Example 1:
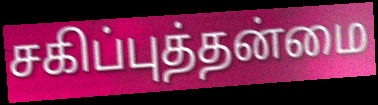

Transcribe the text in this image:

சகிப்புத்தன்மை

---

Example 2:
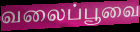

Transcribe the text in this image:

வலைப்பூவை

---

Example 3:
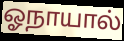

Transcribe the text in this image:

ஓநாயால்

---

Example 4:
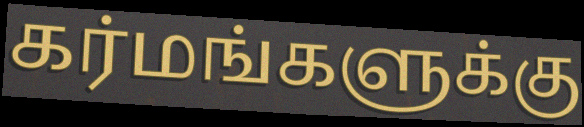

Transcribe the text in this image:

கர்மங்களுக்கு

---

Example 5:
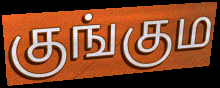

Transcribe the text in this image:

குங்கும